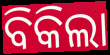
ବିକିଲା